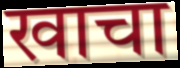
खाचा